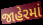
જાહેરમાં